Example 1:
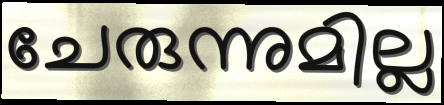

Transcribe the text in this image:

ചേരുന്നുമില്ല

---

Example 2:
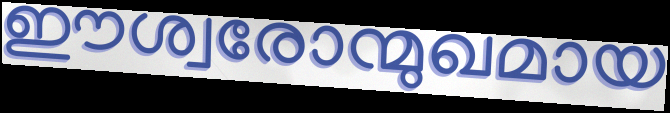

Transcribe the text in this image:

ഈശ്വരോന്മുഖമായ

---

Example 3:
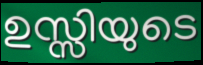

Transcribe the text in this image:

ഉസ്സിയുടെ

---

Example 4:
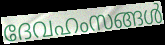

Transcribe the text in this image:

ദേവഹംസങ്ങൾ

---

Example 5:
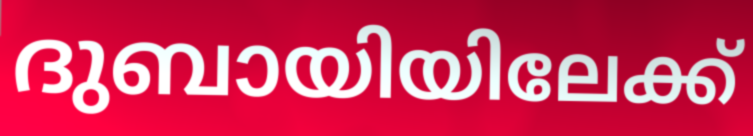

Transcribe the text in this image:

ദുബായിയിലേക്ക്